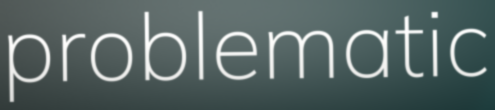
problematic